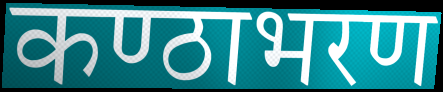
कण्ठाभरण